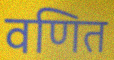
वणित